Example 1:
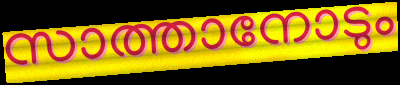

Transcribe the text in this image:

സാത്താനോടും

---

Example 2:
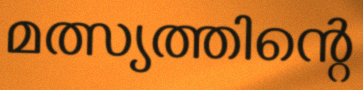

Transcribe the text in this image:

മത്സ്യത്തിന്റെ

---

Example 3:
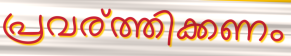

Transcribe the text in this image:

പ്രവര്ത്തിക്കണം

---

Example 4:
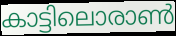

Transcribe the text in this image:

കാട്ടിലൊരാൺ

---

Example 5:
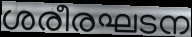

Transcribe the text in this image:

ശരീരഘടന